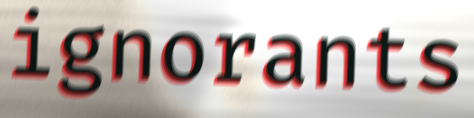
ignorants